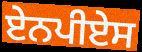
ਏਨਪੀਏਸ